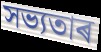
সভ্যতাৰ